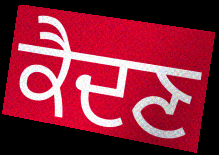
ਕੈਦਣ